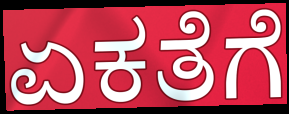
ಏಕತೆಗೆ